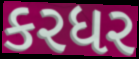
કરધર